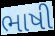
ભાષી